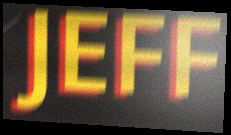
JEFF